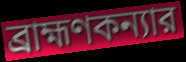
ব্রাহ্মণকন্যার